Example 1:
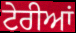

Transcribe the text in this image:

ਟੇਰੀਆਂ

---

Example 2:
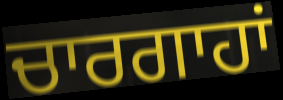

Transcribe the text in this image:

ਚਾਰਗਾਹਾਂ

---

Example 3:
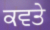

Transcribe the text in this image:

ਕਵਤੇ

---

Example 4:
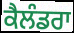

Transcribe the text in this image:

ਕੈਲੰਡਰਾ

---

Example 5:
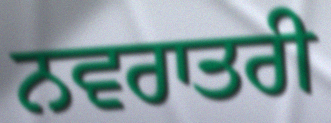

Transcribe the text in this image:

ਨਵਰਾਤਰੀ